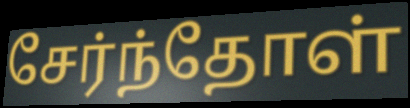
சேர்ந்தோள்